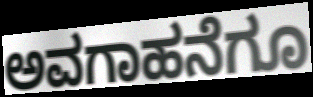
ಅವಗಾಹನೆಗೂ